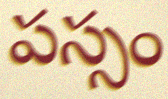
పస్సం